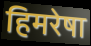
हिमरेषा